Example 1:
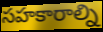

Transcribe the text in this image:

సహకారాల్ని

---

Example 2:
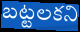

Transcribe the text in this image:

బట్టలకని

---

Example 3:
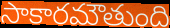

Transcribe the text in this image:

సాకారమౌతుంది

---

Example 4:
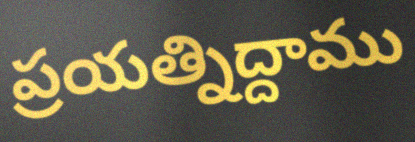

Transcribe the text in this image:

ప్రయత్నిద్దాము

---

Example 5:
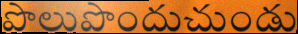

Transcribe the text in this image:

పొలుపొందుచుండు